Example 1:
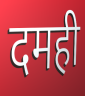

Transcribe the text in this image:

दमही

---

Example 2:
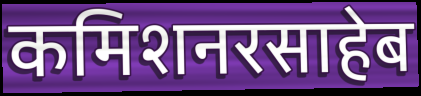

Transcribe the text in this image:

कमिशनरसाहेब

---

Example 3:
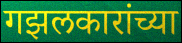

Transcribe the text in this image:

गझलकारांच्या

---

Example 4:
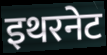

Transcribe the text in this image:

इथरनेट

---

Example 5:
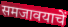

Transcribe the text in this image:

समजावयाचें